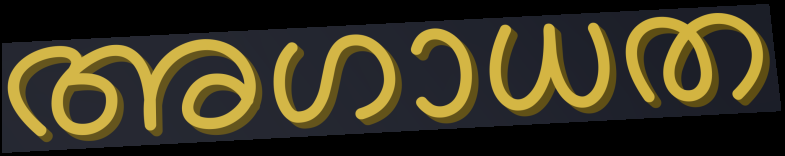
അഗാധത